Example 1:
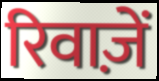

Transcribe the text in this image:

रिवाज़ें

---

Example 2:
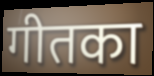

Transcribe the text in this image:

गीतका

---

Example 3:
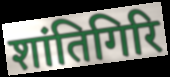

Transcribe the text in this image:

शांतिगिरि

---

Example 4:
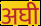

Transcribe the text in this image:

अघी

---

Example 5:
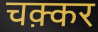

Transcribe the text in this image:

चक़्कर